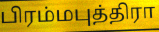
பிரம்மபுத்திரா